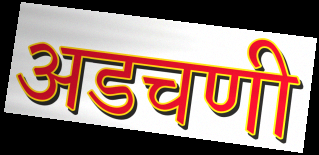
अडचणी